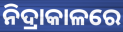
ନିଦ୍ରାକାଳରେ